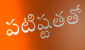
పటిష్టతతో